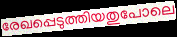
രേഖപ്പെടുത്തിയതുപോലെ